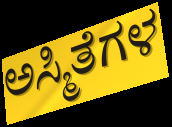
ಅಸ್ಮಿತೆಗಳ